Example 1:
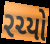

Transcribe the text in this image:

રચ્યો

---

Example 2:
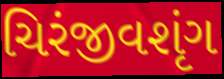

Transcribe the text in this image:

ચિરંજીવશૃંગ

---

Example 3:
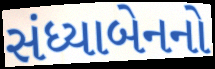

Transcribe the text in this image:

સંધ્યાબેનનો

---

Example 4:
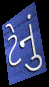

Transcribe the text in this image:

ટેનું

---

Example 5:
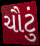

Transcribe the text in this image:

ચૌટું